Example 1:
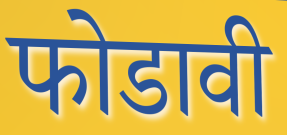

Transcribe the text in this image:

फोडावी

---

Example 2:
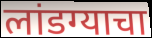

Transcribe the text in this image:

लांडग्याचा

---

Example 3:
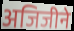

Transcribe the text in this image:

अजिजीने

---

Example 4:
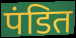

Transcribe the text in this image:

पंडित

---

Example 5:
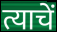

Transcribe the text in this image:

त्याचें